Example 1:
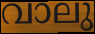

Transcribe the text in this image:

വാലു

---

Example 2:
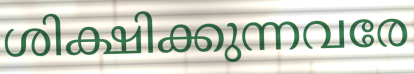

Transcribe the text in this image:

ശിക്ഷിക്കുന്നവരേ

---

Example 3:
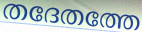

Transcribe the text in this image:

തദേതത്തേ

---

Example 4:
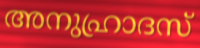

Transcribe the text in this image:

അനുഹ്രാദസ്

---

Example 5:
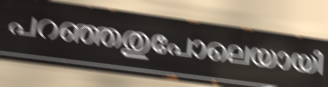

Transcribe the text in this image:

പറഞ്ഞതുപോലെയായി